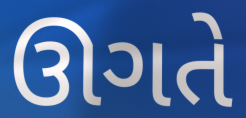
ઊગતે